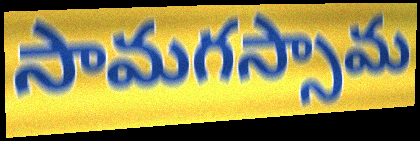
సామగస్సామ